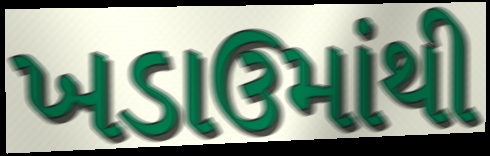
ખડાઉમાંથી